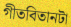
গীতবিতানটা